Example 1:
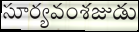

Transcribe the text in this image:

సూర్యవంశజుడు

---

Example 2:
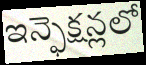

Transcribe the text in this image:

ఇన్ఫెక్షన్లలో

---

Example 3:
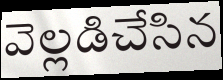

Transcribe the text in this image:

వెల్లడిచేసిన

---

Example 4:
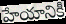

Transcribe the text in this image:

హేయానికీ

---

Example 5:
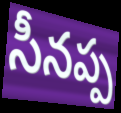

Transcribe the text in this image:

సీనప్ప